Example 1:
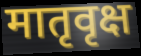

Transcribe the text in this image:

मातृवृक्ष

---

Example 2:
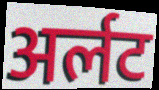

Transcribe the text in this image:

अर्लट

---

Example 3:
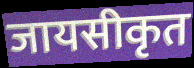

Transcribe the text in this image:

जायसीकृत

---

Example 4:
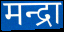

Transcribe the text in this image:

मन्द्रा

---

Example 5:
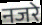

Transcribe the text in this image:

नजरे